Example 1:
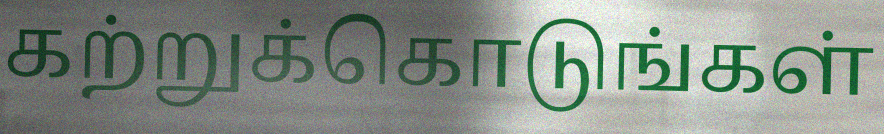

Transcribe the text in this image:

கற்றுக்கொடுங்கள்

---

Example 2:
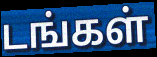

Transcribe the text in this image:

டங்கள்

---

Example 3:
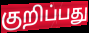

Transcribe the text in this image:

குறிப்பது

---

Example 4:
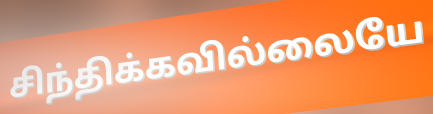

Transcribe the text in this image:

சிந்திக்கவில்லையே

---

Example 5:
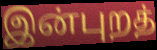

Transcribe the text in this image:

இன்புறத்